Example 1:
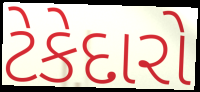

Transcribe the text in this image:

ટેકેદારો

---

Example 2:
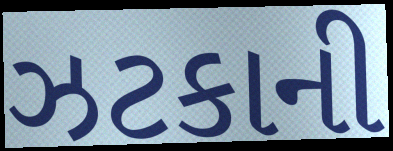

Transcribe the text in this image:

ઝટકાની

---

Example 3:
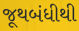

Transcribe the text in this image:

જૂથબંધીથી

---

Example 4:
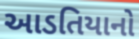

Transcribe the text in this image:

આડતિયાનો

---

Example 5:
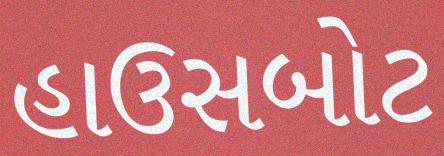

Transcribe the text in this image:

હાઉસબોટ